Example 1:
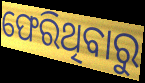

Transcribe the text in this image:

ଫେରିଥିବାରୁ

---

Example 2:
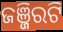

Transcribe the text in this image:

ଜଞ୍ଜିରଟି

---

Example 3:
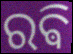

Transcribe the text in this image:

ରଵି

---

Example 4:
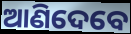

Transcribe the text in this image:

ଆଣିଦେବେ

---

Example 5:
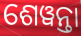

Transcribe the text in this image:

ଶେୱନ୍ତା